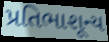
પ્રતિભાશૂન્ય